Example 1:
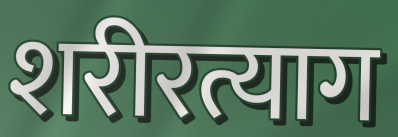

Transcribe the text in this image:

शरीरत्याग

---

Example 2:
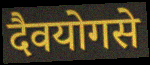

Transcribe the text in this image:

दैवयोगसे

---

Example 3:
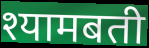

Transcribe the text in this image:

श्यामबती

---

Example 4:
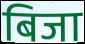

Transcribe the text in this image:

बिजा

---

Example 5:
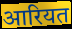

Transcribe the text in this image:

आरियत